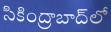
సికింద్రాబాద్‌లో